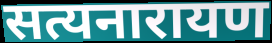
सत्यनारायण